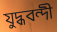
যুদ্ধবন্দী